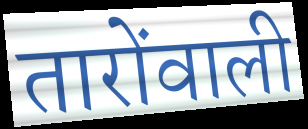
तारोंवाली